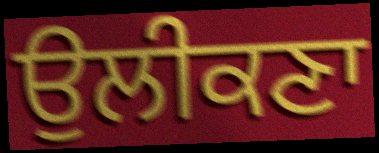
ਉਲੀਕਣਾ